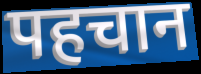
पहचान